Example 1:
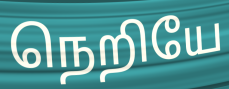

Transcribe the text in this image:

நெறியே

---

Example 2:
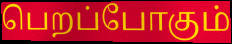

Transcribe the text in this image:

பெறப்போகும்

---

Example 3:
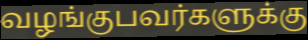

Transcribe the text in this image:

வழங்குபவர்களுக்கு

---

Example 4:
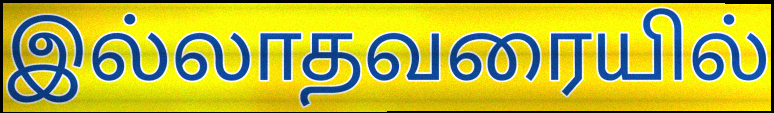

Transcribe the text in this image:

இல்லாதவரையில்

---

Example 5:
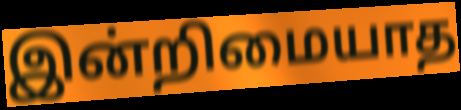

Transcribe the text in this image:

இன்றிமையாத